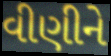
વીણીને